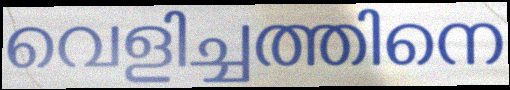
വെളിച്ചത്തിനെ